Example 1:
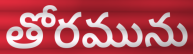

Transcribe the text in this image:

తోరమును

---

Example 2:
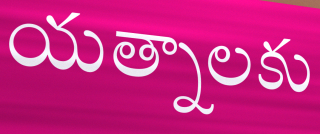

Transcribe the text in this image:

యత్నాలకు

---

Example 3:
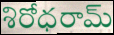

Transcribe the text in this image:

శిరోధరామ్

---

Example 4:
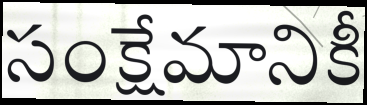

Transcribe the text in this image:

సంక్షేమానికీ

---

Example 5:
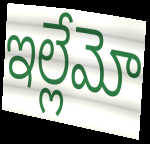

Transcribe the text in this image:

ఇల్లేమో